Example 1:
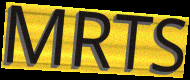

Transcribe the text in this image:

MRTS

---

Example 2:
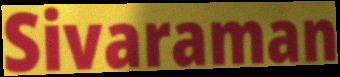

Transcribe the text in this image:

Sivaraman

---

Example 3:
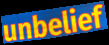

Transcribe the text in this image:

unbelief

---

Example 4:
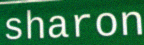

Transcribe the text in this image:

sharon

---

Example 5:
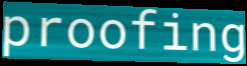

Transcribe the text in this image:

proofing